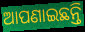
ଆପଣାଇଛନ୍ତି